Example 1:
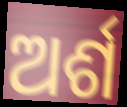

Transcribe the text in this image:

ଅର୍ଶ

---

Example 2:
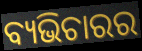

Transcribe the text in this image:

ବ୍ୟଭିଚାରର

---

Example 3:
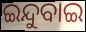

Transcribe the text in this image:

ଇନ୍ଦୁବାଇ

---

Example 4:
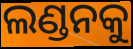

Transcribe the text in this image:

ଲଣ୍ଡନକୁ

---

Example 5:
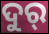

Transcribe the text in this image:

ଦୁର୍